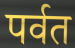
पर्वत